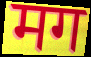
मग